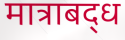
मात्राबद्ध